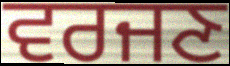
ਵਰਜਣ